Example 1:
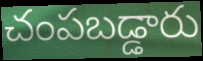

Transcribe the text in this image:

చంపబడ్డారు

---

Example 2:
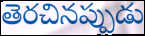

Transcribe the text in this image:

తెరచినప్పుడు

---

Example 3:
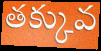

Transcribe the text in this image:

తక్కువ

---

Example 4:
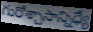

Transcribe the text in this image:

గురోశ్చాసాన్నిధ్యే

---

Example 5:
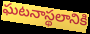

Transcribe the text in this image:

ఘటనాస్థలానికి